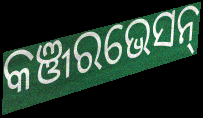
କଞ୍ଜରଭେସନ୍